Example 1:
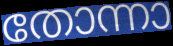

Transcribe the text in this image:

തോന്നാ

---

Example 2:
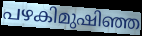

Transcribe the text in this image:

പഴകിമുഷിഞ്ഞ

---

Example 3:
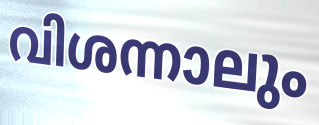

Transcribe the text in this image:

വിശന്നാലും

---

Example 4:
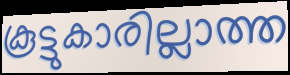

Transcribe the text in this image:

കൂട്ടുകാരില്ലാത്ത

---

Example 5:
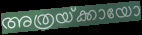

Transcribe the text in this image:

അത്രയ്‌ക്കായോ